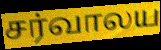
சர்வாலய